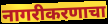
नागरीकरणाचा